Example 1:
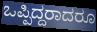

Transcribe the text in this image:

ಒಪ್ಪಿದ್ದರಾದರೂ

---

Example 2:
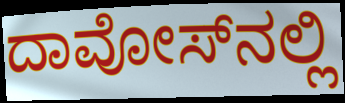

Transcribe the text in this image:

ದಾವೋಸ್‌ನಲ್ಲಿ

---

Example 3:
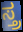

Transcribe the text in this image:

ಸ್ತ್ರ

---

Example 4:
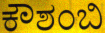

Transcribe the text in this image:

ಕೌಶಂಬಿ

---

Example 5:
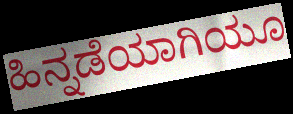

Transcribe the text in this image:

ಹಿನ್ನಡೆಯಾಗಿಯೂ